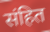
संहित